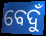
ବେଦୁଁ